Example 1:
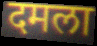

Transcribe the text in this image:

दमला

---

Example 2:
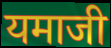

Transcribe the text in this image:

यमाजी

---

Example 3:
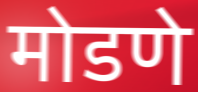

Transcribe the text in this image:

मोडणे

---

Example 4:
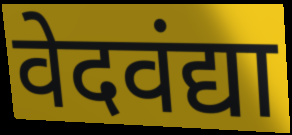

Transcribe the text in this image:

वेदवंद्या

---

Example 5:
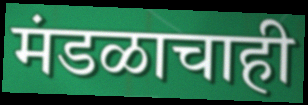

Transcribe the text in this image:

मंडळाचाही